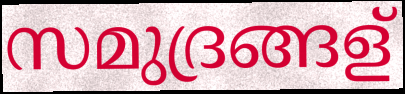
സമുദ്രങ്ങള്